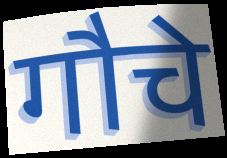
गौचे